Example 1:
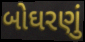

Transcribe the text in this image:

બોઘરણું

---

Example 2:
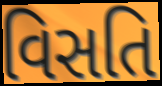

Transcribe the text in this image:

વિસતિ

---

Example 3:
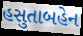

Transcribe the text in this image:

હસુતાબહેન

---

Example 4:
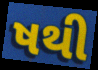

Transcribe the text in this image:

ષથી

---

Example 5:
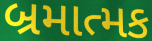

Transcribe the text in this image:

બ્રમાત્મક